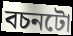
বচনটো